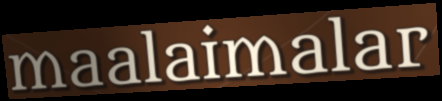
maalaimalar